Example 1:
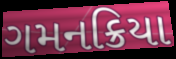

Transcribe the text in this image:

ગમનક્રિયા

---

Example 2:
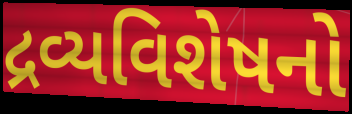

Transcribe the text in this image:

દ્રવ્યવિશેષનો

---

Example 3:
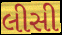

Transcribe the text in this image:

લીસી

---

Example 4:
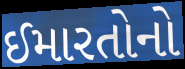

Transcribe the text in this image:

ઈમારતોનો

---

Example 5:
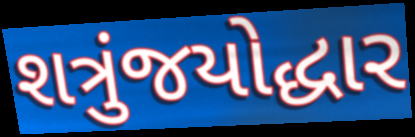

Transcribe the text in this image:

શત્રુંજયોદ્ધાર